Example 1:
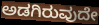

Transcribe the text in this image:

ಅಡಗಿರುವುದೇ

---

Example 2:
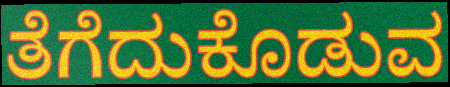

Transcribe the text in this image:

ತೆಗೆದುಕೊಡುವ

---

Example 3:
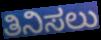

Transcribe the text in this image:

ತಿನಿಸಲು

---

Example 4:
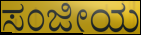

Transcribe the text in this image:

ಸಂಜೀಯ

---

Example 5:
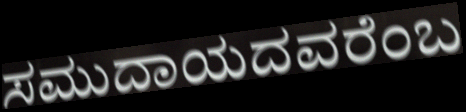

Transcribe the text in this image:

ಸಮುದಾಯದವರೆಂಬ